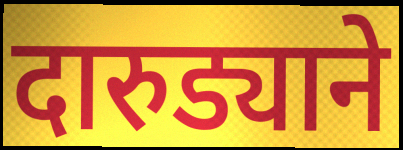
दारुड्याने